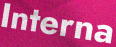
Interna